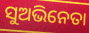
ସୁଅଭିନେତା